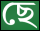
ছে